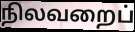
நிலவறைப்